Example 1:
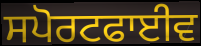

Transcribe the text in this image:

ਸਪੋਰਟਫਾਈਵ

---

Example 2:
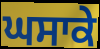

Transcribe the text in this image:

ਘਸਾਕੇ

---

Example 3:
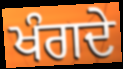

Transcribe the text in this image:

ਖੰਗਦੇ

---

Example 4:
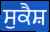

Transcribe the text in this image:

ਸੁਕੈਸ਼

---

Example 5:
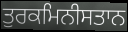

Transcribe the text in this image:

ਤੁਰਕਮਿਨੀਸਤਾਨ